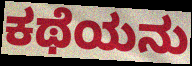
ಕಥೆಯನು